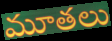
మూతలు